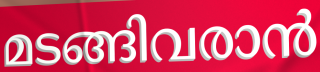
മടങ്ങിവരാൻ